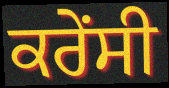
ਕਰੇੰਸੀ